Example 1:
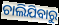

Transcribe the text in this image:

ଚାଲିଯିବାରୁ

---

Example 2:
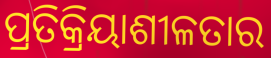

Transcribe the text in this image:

ପ୍ରତିକ୍ରିୟାଶୀଳତାର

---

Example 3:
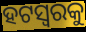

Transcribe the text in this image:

ହଟସ୍ଵରକୁ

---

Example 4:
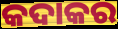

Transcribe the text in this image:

କଦାକର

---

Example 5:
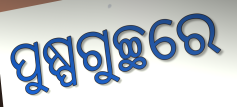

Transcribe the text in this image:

ପୁଷ୍ପଗୁଚ୍ଛରେ